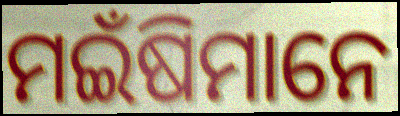
ମଇଁଷିମାନେ